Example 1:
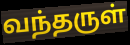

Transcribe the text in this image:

வந்தருள்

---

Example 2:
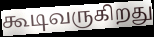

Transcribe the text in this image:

கூடிவருகிறது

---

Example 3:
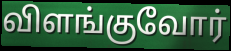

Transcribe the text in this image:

விளங்குவோர்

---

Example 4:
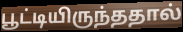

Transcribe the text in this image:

பூட்டியிருந்ததால்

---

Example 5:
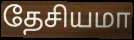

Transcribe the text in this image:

தேசியமா